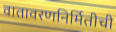
वातावरणनिर्मितीची